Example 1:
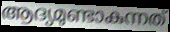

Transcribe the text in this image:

ആദ്യമുണ്ടാകുന്നത്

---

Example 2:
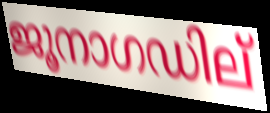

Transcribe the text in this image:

ജൂനാഗഡില്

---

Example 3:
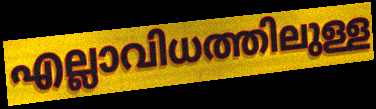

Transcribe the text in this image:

എല്ലാവിധത്തിലുള്ള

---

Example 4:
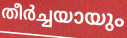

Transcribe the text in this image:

തീർച്ചയായും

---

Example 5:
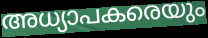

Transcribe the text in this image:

അധ്യാപകരെയും